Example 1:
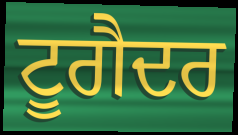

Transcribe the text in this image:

ਟੂਗੈਦਰ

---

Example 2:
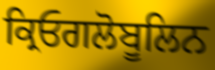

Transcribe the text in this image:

ਕ੍ਰਿਓਗਲੋਬੂਲਿਨ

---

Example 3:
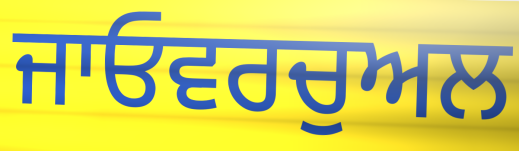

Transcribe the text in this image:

ਜਾਓਵਰਚੁਅਲ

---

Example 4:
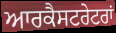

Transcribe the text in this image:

ਆਰਕੈਸਟਰੇਟਰਾਂ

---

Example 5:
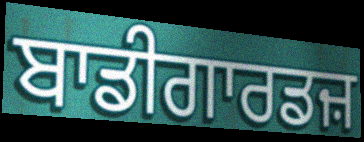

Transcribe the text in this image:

ਬਾਡੀਗਾਰਡਜ਼